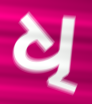
ଧି